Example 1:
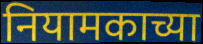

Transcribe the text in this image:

नियामकाच्या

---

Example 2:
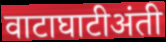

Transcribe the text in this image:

वाटाघाटीअंती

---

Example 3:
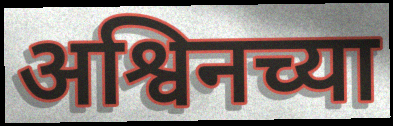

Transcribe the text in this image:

अश्विनच्या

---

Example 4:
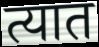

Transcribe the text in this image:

त्यात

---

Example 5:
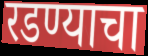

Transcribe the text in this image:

रडण्याचा